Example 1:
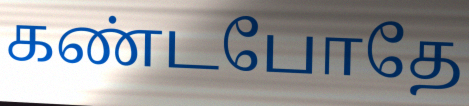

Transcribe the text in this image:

கண்டபோதே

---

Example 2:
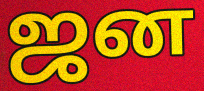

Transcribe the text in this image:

ஜன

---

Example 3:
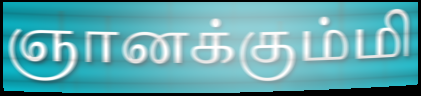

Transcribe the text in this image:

ஞானக்கும்மி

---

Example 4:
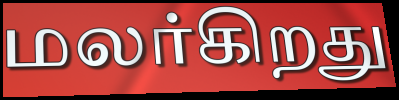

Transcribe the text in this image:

மலர்கிறது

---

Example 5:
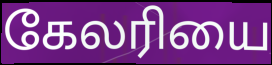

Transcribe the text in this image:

கேலரியை